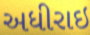
અધીરાઇ